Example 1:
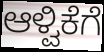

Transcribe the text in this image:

ಆಳ್ವಿಕೆಗೆ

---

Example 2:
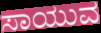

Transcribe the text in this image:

ಸಾಯುವ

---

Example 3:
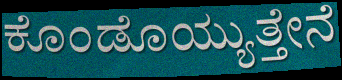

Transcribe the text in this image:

ಕೊಂಡೊಯ್ಯುತ್ತೇನೆ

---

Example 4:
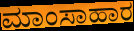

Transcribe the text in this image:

ಮಾಂಸಾಹಾರ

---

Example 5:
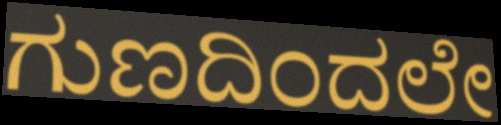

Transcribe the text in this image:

ಗುಣದಿಂದಲೇ